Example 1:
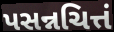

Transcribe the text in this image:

પસન્નચિત્તં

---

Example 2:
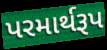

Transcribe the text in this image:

પરમાર્થરૂપ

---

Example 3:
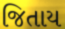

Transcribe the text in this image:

જિતાય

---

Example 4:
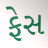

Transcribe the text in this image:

ફેસ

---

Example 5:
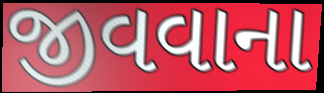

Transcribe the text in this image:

જીવવાના